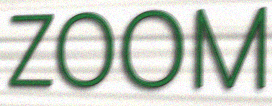
ZOOM